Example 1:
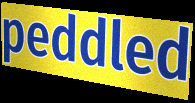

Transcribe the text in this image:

peddled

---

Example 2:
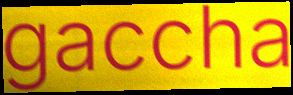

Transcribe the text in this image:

gaccha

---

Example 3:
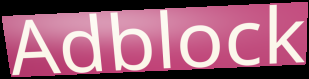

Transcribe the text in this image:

Adblock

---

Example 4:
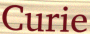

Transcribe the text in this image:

Curie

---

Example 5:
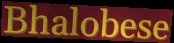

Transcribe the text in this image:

Bhalobese